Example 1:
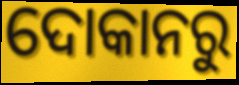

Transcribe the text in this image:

ଦୋକାନରୁ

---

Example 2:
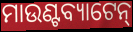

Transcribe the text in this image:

ମାଉଣ୍ଟବ୍ୟାଟେନ୍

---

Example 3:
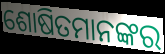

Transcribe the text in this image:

ଶୋଷିତମାନଙ୍କର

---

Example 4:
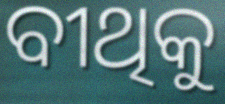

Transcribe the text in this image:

ବୀଥିକୁ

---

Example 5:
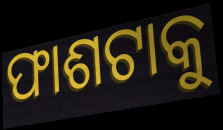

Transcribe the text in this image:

ଫାଶଟାକୁ